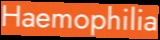
Haemophilia